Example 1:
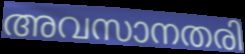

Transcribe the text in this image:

അവസാനതരി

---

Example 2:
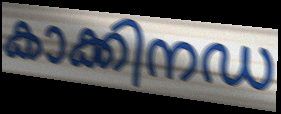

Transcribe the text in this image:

കാക്കിനഡ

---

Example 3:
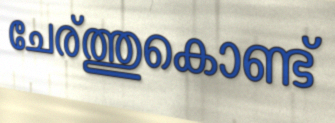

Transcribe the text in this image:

ചേര്ത്തുകൊണ്ട്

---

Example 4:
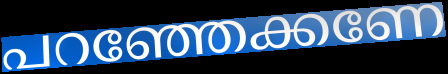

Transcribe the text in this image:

പറഞ്ഞേക്കണേ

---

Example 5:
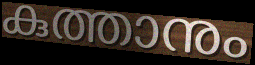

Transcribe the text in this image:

കുത്താനും